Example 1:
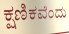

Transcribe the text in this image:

ಕ್ಷಣಿಕವೆಂದು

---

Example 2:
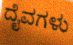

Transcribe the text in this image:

ದೈವಗಳು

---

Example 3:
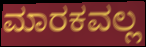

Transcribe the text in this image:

ಮಾರಕವಲ್ಲ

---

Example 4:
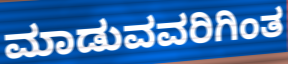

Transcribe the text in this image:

ಮಾಡುವವರಿಗಿಂತ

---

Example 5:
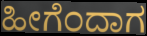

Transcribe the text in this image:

ಹೀಗೆಂದಾಗ